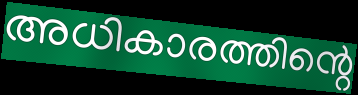
അധികാരത്തിന്റെ